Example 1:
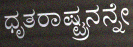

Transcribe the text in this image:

ಧೃತರಾಷ್ಟ್ರನನ್ನೇ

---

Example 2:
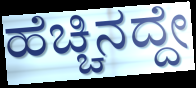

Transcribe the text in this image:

ಹೆಚ್ಚಿನದ್ದೇ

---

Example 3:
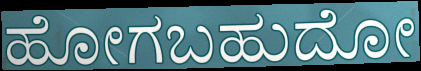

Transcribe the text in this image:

ಹೋಗಬಹುದೋ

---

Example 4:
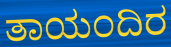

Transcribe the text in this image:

ತಾಯಂದಿರ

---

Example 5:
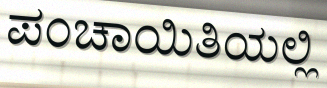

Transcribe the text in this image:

ಪಂಚಾಯಿತಿಯಲ್ಲಿ